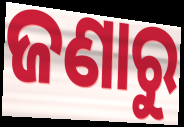
ଜଣାରୁ